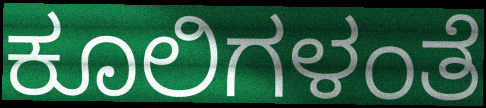
ಕೂಲಿಗಳಂತೆ